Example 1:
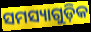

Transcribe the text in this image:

ସମସ୍ୟାଗୁଡ଼ିକ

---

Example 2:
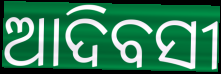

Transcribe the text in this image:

ଆଦିବସୀ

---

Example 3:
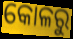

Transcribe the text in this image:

କୋଳରୁ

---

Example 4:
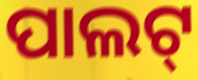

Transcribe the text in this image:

ପାଲଟ୍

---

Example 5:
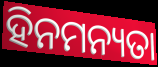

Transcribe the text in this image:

ହିନମନ୍ୟତା